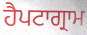
ਹੈਪਟਾਗ੍ਰਾਮ